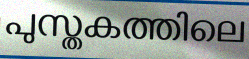
പുസ്തകത്തിലെ